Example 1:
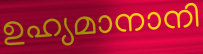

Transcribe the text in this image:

ഉഹ്യമാനാനി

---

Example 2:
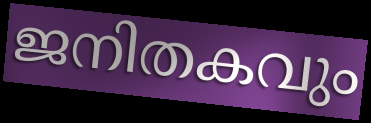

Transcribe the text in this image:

ജനിതകവും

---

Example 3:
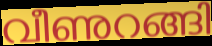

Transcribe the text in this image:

വീണുറങ്ങി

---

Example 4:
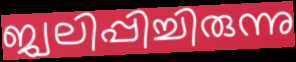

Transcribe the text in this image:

ജ്വലിപ്പിച്ചിരുന്നു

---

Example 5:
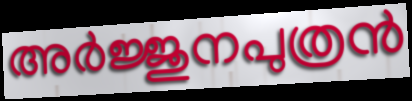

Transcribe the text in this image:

അർജ്ജുനപുത്രൻ